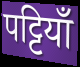
पट्टियाँ